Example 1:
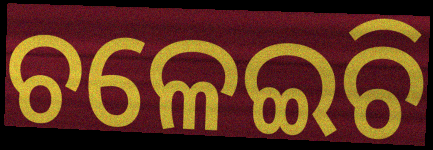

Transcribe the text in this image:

ଚଳେଇଚି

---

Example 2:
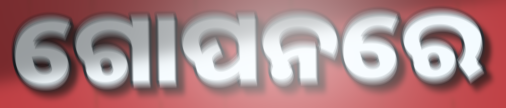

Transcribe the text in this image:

ଗୋପନରେ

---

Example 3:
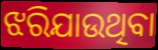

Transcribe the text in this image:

ଝରିଯାଉଥିବା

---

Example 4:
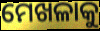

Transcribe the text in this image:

ମେଖଳାକୁ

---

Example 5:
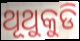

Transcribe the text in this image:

ଥୂଥୁକୁଡି